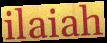
ilaiah